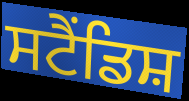
ਸਟੈਂਡਿਸ਼